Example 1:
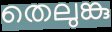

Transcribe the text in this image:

തെലുങ്കു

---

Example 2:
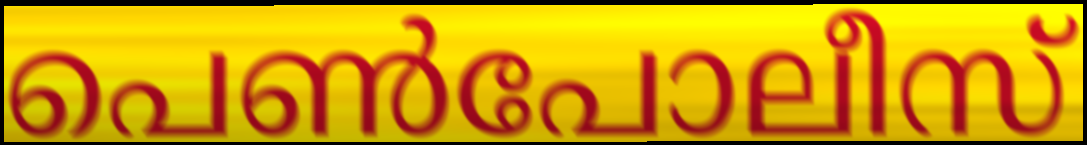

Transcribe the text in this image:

പെൺപോലീസ്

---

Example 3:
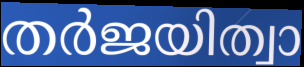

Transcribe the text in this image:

തർജയിത്വാ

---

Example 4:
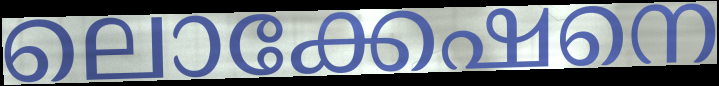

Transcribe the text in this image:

ലൊക്കേഷനെ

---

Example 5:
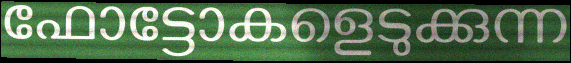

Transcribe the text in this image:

ഫോട്ടോകളെടുക്കുന്ന